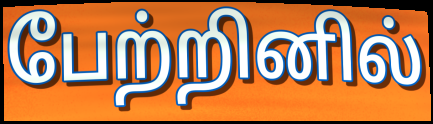
பேற்றினில்